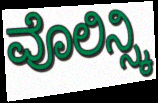
ವೊಲಿನ್ಸ್ಕಿ